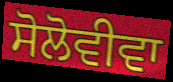
ਸੋਲੋਵੀਵਾ